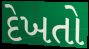
દેખતો